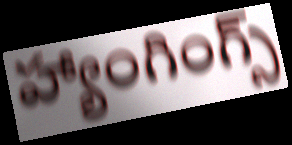
హ్యాంగింగ్స్